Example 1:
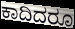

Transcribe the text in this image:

ಕಾದಿದರೂ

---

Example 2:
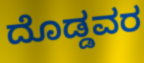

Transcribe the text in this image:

ದೊಡ್ಡವರ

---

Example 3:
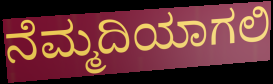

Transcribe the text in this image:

ನೆಮ್ಮದಿಯಾಗಲಿ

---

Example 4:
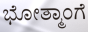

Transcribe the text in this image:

ಭೋತ್ಮಾಂಗೆ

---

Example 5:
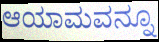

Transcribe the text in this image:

ಆಯಾಮವನ್ನೂ